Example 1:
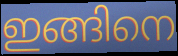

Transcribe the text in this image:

ഇങ്ങിനെ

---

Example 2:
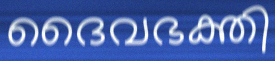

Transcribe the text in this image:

ദൈവഭക്തി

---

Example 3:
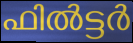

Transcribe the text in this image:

ഫിൽട്ടർ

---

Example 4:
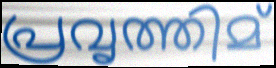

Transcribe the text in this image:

പ്രവൃത്തിമ്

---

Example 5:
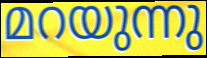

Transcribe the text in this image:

മറയുന്നു